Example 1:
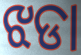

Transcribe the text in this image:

ଝଡା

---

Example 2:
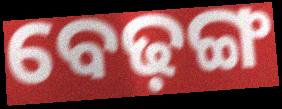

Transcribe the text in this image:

ବେଢ଼ଙ୍ଗ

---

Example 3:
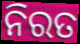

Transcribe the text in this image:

ନିରତ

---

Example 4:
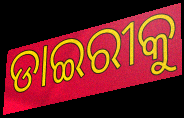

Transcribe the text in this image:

ଡାଇରୀକୁ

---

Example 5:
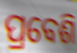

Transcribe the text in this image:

ପ୍ରବେଶି